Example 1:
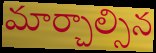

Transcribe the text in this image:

మార్చాల్సిన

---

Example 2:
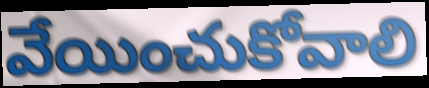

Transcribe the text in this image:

వేయించుకోవాలి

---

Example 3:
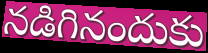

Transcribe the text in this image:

నడిగినందుకు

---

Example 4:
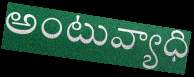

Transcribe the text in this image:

అంటువ్యాధి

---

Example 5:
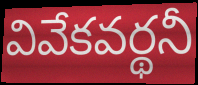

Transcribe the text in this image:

వివేకవర్థనీ